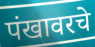
पंखावरचे